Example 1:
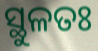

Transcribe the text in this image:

ସ୍ଥୁଳତଃ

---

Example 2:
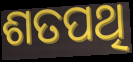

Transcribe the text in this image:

ଶତପଥି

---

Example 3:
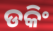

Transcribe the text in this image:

ଡକିଂ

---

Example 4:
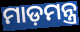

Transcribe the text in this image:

ମାଡ଼ମନ୍ତ୍ର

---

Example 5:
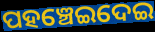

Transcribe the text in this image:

ପହଞ୍ଚେଇଦେଇ